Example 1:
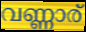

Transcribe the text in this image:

വണ്ണാര്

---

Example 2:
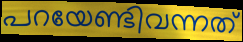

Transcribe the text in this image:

പറയേണ്ടിവന്നത്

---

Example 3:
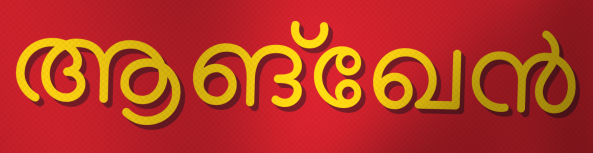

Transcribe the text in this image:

ആങ്ഖേൻ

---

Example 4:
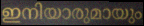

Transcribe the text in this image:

ഇനിയാരുമായും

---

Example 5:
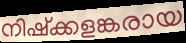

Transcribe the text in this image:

നിഷ്ക്കളങ്കരായ